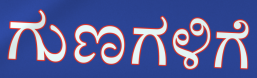
ಗುಣಗಳಿಗೆ